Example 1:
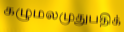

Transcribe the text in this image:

கழுமலமுதுபதிக்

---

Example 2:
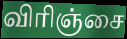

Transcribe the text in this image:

விரிஞ்சை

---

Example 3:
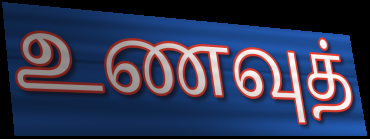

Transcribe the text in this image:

உணவுத்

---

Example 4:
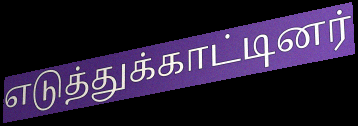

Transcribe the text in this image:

எடுத்துக்காட்டினர்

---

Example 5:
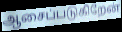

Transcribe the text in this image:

ஆசைப்படுகிறேன்